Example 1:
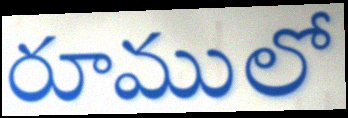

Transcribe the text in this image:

రూములో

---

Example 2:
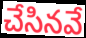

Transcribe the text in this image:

చేసినవే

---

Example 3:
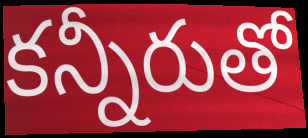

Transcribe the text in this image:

కన్నీరుతో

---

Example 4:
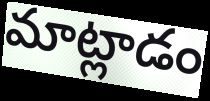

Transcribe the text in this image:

మాట్లాడం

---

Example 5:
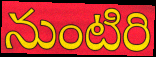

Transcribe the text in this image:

నుంటిరి